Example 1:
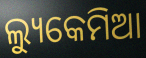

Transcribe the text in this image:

ଲ୍ୟୁକେମିଆ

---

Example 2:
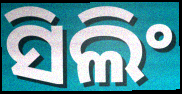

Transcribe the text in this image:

ସିଲିଂ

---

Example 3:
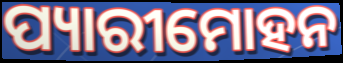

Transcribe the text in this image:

ପ୍ୟାରୀମୋହନ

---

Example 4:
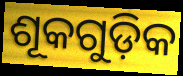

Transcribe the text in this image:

ଶୂକଗୁଡ଼ିକ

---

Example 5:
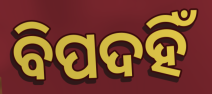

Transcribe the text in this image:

ବିପଦହିଁ